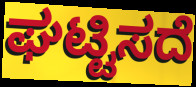
ಘಟ್ಟಿಸದೆ